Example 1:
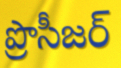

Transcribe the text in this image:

ప్రొసీజర్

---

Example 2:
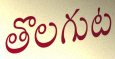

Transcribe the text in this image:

తొలగుట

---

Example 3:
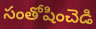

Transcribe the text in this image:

సంతోషించెడి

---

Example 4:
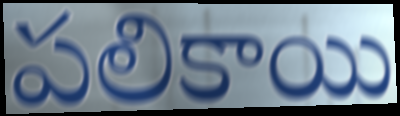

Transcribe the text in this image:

పలికాయి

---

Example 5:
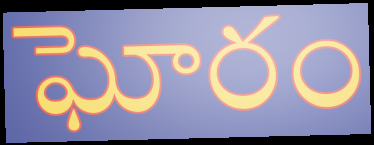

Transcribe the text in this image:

ఘోరం